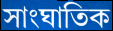
সাংঘাতিক